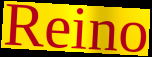
Reino